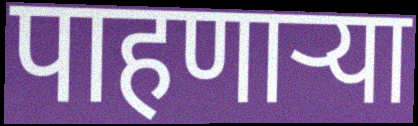
पाहणार्‍या